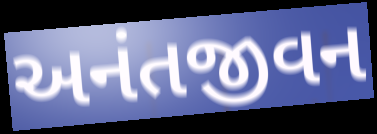
અનંતજીવન